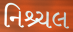
નિશ્ર્ચલ